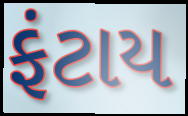
ફંટાય